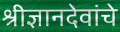
श्रीज्ञानदेवांचे